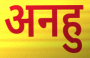
अनहु